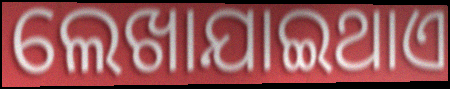
ଲେଖାଯାଇଥାଏ